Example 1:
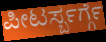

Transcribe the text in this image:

ಪೀಟರ್ಸ್ಬರ್ಗ್ಗೆ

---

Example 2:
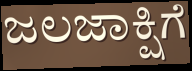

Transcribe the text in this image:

ಜಲಜಾಕ್ಷಿಗೆ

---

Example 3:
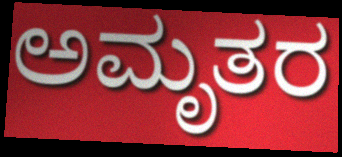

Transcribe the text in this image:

ಅಮೃತರ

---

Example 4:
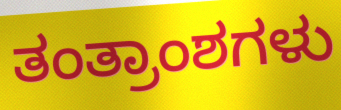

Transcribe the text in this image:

ತಂತ್ರಾಂಶಗಳು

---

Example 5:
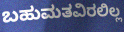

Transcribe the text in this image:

ಬಹುಮತವಿರಲಿಲ್ಲ